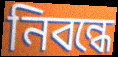
নিবন্ধে